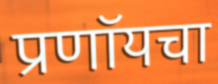
प्रणॉयचा